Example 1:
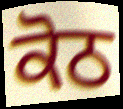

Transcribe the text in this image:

ਕੋਠ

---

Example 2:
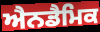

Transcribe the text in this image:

ਐਨਡੈਮਿਕ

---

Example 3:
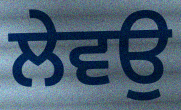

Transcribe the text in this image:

ਲੇਵਉ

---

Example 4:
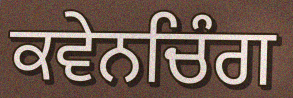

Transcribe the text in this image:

ਕਵੇਨਚਿੰਗ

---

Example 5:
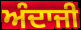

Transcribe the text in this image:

ਅੰਦਾਜੀ